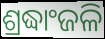
ଶ୍ରଦ୍ଧାଂଜଳି